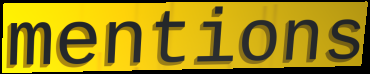
mentions